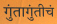
गुंतागुंतीचं